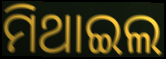
ମିଥାଇଲ